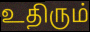
உதிரும்